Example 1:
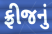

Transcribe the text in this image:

ફ્રીજનું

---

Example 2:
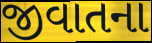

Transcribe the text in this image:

જીવાતના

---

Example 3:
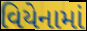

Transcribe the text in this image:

વિયેનામાં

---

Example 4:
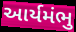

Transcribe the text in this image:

આર્યમંભુ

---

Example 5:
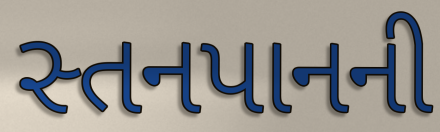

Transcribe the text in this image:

સ્તનપાનની